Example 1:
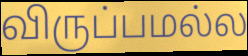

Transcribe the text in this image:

விருப்பமல்ல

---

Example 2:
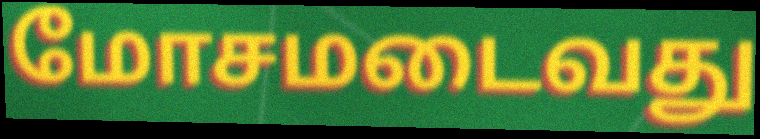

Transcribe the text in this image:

மோசமடைவது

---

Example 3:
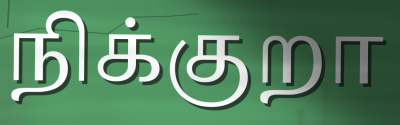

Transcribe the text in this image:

நிக்குறா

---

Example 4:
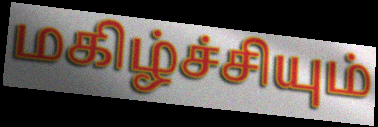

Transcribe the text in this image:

மகிழ்ச்சியும்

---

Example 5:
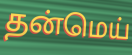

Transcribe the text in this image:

தன்மெய்